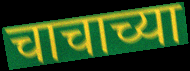
चाचाच्या